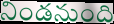
నిండనుంది